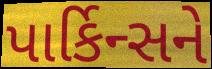
પાર્કિન્સને